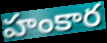
హంకార